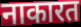
नाकारत